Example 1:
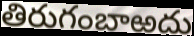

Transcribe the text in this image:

తిరుగంబాఱదు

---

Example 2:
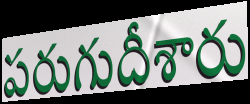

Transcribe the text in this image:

పరుగుదీశారు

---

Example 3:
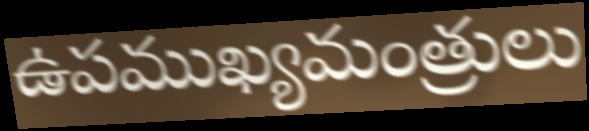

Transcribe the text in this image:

ఉపముఖ్యమంత్రులు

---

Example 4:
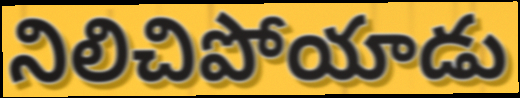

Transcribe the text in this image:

నిలిచిపోయాడు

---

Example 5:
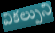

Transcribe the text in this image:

వికల్పుని